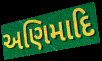
અણિમાદિ